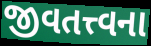
જીવતત્ત્વના